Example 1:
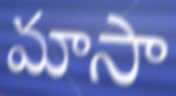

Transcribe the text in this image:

మాసా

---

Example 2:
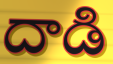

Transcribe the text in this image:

దాడి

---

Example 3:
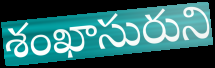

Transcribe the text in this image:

శంఖాసురుని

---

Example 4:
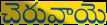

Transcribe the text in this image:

చెరువాయె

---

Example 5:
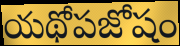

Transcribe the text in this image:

యథోపజోషం